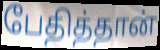
பேதித்தான்